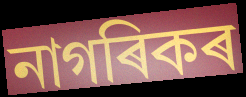
নাগৰিকৰ